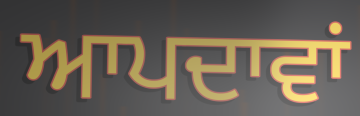
ਆਪਦਾਵਾਂ